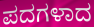
ಪದಗಳಾದ